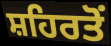
ਸ਼ਹਿਰਤੋਂ